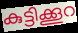
കുട്ടിക്കൂറ